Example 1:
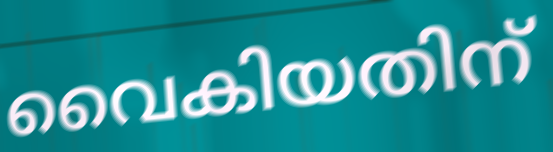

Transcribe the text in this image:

വൈകിയതിന്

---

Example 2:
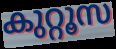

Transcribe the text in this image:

കുറ്റൂസ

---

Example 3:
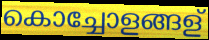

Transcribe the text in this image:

കൊച്ചോളങ്ങള്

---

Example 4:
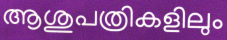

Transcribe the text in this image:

ആശുപത്രികളിലും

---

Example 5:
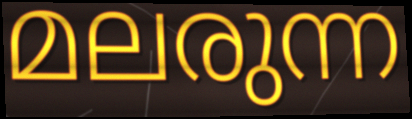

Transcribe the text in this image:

മലരുന്ന